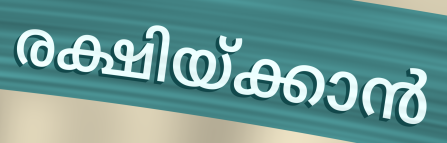
രക്ഷിയ്ക്കാൻ